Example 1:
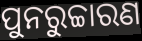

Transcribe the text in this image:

ପୁନରୁଚ୍ଚାରଣ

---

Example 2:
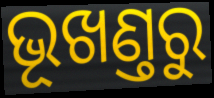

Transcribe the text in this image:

ଭୂଖଣ୍ତରୁ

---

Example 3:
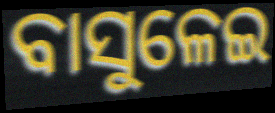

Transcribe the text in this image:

ବାସୁଳେଇ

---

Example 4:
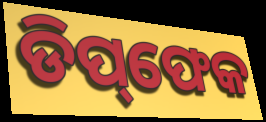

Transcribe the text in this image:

ଡିପ୍‌ଫେକ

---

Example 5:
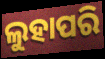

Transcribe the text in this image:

ଲୁହାପରି